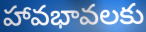
హావభావలకు